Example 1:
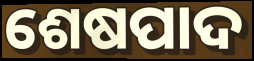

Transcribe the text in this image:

ଶେଷପାଦ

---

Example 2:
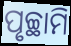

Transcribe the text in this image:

ପୃଚ୍ଛାମି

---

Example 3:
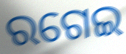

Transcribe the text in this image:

ରଗେଇ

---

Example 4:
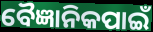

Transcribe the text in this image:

ବୈଜ୍ଞାନିକପାଇଁ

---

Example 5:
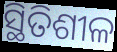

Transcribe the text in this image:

ସ୍ଥିତିଶୀଳ